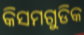
କିସମଗୁଡିକ